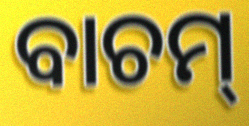
ବାଚମ୍